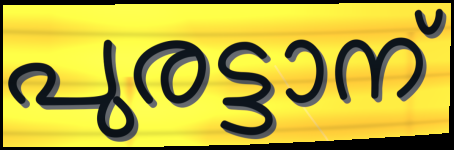
പുരട്ടാന്